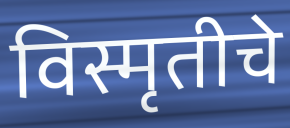
विस्मृतीचे